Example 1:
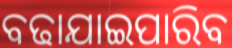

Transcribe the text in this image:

ବଢାଯାଇପାରିବ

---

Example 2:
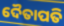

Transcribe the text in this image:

ଦୈତାପତି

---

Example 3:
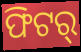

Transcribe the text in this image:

ଫିଟର୍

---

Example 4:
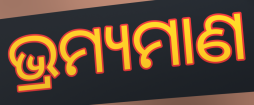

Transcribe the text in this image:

ଭ୍ରମ୍ୟମାଣ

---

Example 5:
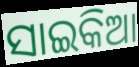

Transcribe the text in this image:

ସାଇକିଆ